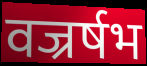
वज्रर्षभ